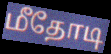
மீதோடி